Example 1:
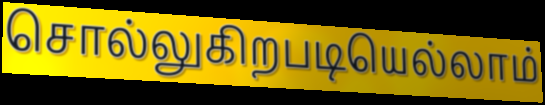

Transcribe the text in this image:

சொல்லுகிறபடியெல்லாம்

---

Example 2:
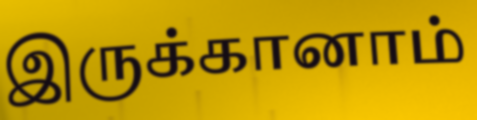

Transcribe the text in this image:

இருக்கானாம்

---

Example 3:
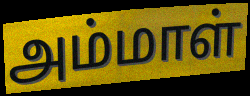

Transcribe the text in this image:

அம்மாள்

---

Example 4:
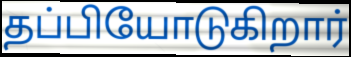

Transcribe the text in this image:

தப்பியோடுகிறார்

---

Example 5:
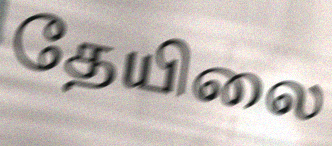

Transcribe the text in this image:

தேயிலை